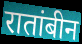
रातांबीन